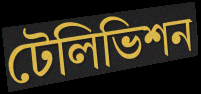
টেলিভিশন